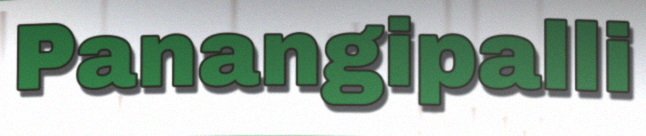
Panangipalli